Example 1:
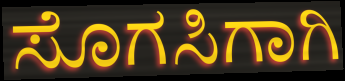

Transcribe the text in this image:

ಸೊಗಸಿಗಾಗಿ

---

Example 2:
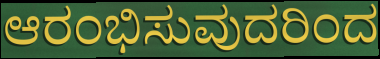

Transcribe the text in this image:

ಆರಂಭಿಸುವುದರಿಂದ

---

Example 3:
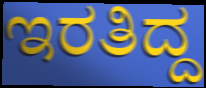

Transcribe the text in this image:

ಇರತಿದ್ದ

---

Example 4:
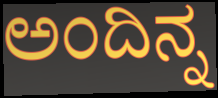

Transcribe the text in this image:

ಅಂದಿನ್ನ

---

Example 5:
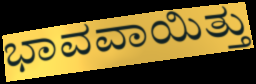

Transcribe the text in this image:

ಭಾವವಾಯಿತ್ತು